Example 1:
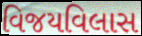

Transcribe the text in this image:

વિજયવિલાસ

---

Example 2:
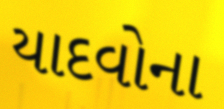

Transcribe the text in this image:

યાદવોના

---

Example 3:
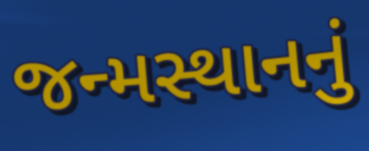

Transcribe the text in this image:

જન્મસ્થાનનું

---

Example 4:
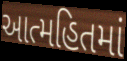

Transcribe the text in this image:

આત્મહિતમાં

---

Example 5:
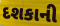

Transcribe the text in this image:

દશકાની